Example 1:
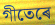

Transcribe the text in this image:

গীতেৰে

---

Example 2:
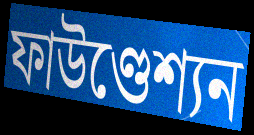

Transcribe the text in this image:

ফাউণ্ডেশ্যন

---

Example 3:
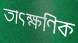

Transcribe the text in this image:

তাৎক্ষণিক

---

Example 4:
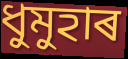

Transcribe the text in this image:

ধুমুহাৰ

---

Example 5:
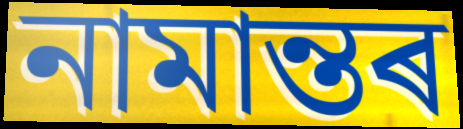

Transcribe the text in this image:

নামান্তৰ